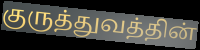
குருத்துவத்தின்